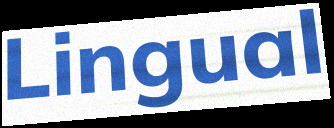
Lingual